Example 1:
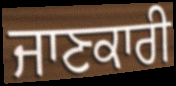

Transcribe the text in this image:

ਜਾਣਕਾਰੀ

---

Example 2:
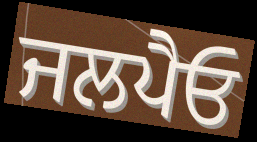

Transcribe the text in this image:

ਜਲਪੈਓ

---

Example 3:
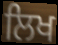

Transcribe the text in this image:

ਲਿਖ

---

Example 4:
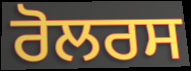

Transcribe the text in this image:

ਰੋਲਰਸ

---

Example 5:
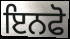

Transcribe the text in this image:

ਇਨਫੋ